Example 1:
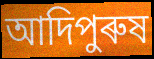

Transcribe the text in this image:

আদিপুৰুষ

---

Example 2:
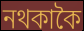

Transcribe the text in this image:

নথকাকৈ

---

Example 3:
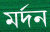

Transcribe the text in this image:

মৰ্দন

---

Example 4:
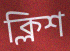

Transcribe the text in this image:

ক্লিশ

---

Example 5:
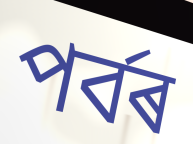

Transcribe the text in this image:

পৰ্বৰ